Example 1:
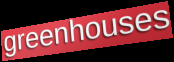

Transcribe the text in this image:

greenhouses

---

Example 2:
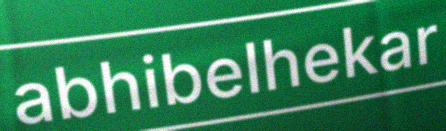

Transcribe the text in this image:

abhibelhekar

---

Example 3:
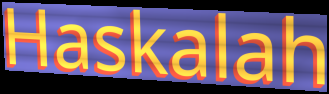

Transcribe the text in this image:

Haskalah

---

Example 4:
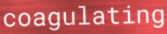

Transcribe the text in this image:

coagulating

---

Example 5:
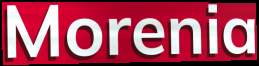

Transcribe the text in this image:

Morenia